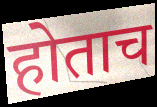
होताच